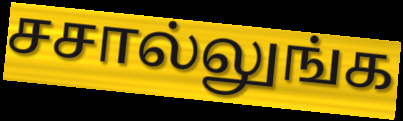
சசால்லுங்க